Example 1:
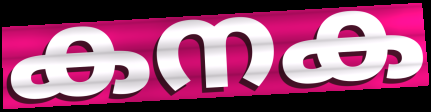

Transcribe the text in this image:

കനക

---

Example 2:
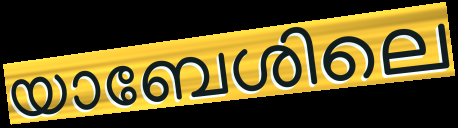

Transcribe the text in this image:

യാബേശിലെ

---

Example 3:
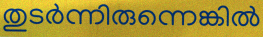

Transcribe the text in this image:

തുടർന്നിരുന്നെങ്കിൽ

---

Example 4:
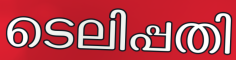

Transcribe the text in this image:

ടെലിപ്പതി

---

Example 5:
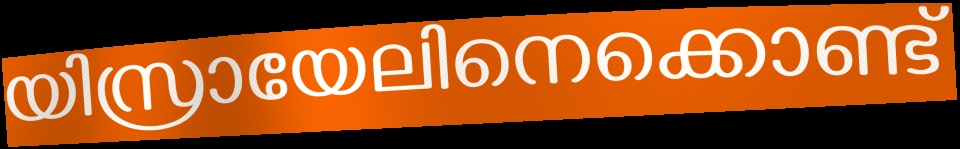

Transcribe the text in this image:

യിസ്രായേലിനെക്കൊണ്ട്